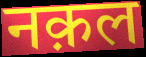
नक़ल